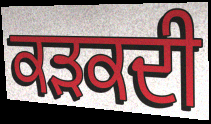
ਕੜਕਦੀ